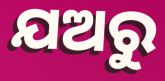
ଯଅରୁ